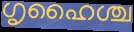
ഗൃഹൈശ്ച